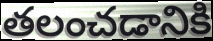
తలంచడానికి